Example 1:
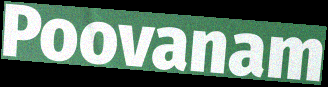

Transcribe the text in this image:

Poovanam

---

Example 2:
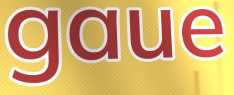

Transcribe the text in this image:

gaue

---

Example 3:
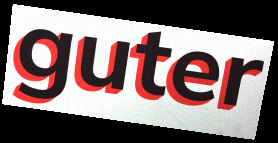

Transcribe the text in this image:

guter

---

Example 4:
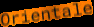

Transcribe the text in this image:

Orientale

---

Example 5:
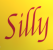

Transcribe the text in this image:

Silly